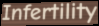
Infertility